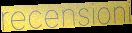
recensioni